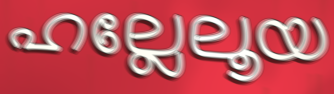
ഹല്ലേലൂയ